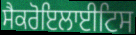
ਸੈਕਰੋਇਲਾਈਟਿਸ